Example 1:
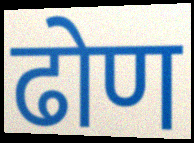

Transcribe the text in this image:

ढोण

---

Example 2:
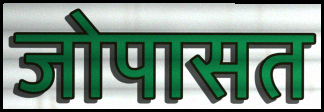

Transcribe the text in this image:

जोपासत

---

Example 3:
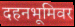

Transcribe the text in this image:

दहनभूमिवर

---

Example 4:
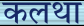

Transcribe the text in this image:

कलथा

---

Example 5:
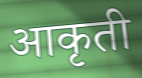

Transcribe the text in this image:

आकृती